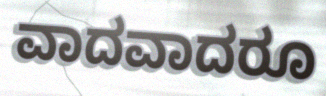
ವಾದವಾದರೂ